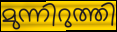
മുന്നിറുത്തി